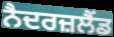
ਨੈਦਰਜ਼ਲੈਂਡ